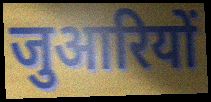
जुआरियों